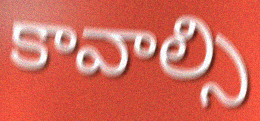
కావాల్సి